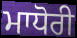
ਮਾਧੋਰੀ